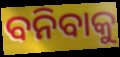
ବନିବାକୁ